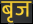
बृज